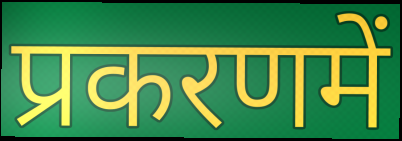
प्रकरणमें